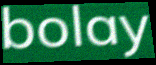
bolay